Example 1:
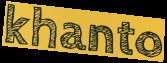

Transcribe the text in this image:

khanto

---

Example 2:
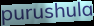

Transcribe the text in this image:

purushula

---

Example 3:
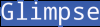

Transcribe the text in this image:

Glimpse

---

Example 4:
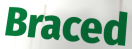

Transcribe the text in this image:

Braced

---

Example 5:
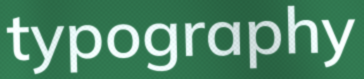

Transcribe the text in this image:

typography